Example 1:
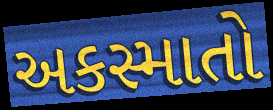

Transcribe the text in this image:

અકસ્માતો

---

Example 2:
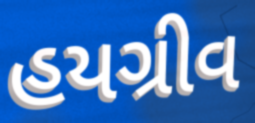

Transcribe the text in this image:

હયગ્રીવ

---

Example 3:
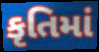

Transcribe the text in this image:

કૃતિમાં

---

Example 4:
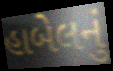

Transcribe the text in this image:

હાબેલનું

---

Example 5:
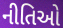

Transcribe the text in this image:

નીતિઓ